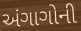
અંગાગોની